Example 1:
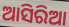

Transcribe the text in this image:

ଆସିରିଆ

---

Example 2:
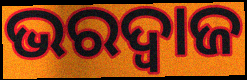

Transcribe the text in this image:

ଭରଦ୍ଵାଜ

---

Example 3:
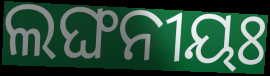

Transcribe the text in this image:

ଲଙ୍ଘନୀୟଃ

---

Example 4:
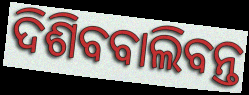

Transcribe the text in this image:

ଦିଶିବବାଲିବନ୍ତ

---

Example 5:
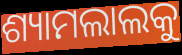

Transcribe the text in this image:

ଶ୍ୟାମଲାଲକୁ